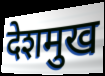
देशमुख